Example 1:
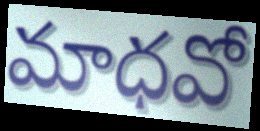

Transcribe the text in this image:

మాధవో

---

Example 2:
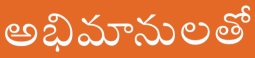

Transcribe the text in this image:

అభిమానులతో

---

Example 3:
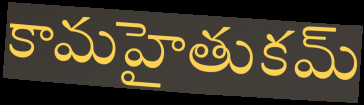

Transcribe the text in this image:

కామహైతుకమ్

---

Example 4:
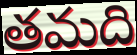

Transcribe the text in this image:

తమది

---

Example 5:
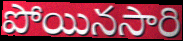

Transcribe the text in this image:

పోయినసారి